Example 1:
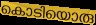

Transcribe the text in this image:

കൊടിയൊരു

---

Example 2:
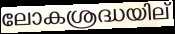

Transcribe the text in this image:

ലോകശ്രദ്ധയില്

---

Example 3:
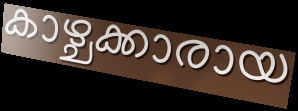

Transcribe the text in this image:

കാഴ്ചക്കാരായ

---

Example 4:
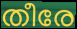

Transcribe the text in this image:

തീരേ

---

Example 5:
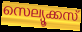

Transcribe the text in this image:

സെല്യൂക്കസ്